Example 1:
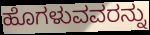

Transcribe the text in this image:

ಹೊಗಳುವವರನ್ನು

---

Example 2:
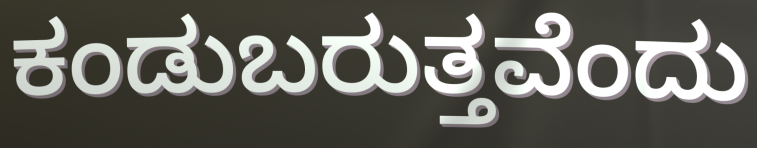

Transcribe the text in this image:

ಕಂಡುಬರುತ್ತವೆಂದು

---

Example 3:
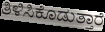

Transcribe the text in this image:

ತಿಳಿಸಿಕೊಡುತ್ತಾರೆ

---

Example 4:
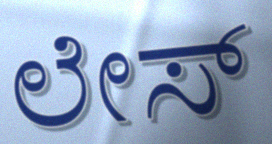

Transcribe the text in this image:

ಲೇಸ್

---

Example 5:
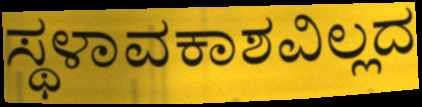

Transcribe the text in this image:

ಸ್ಥಳಾವಕಾಶವಿಲ್ಲದ